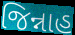
જિન્નાહ